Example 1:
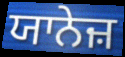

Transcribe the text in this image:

ਯਾਨੇਜ਼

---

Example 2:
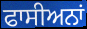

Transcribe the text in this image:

ਫਾਸੀਅਨਾਂ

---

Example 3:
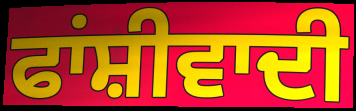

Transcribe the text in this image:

ਫਾਂਸ਼ੀਵਾਦੀ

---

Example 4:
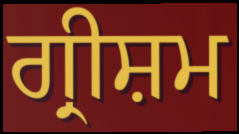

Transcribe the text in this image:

ਗ੍ਰੀਸ਼ਮ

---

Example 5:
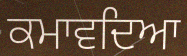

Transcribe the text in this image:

ਕਮਾਵਦਿਆ